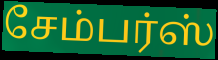
சேம்பர்ஸ்